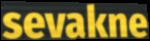
sevakne